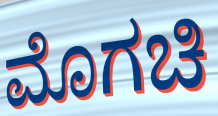
ಮೊಗಚಿ